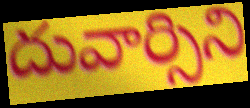
దువార్సిని